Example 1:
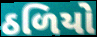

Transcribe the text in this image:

ઠળિયો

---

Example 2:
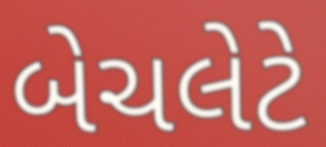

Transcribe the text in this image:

બેચલેટે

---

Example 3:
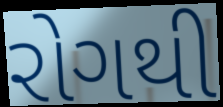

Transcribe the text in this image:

રોગથી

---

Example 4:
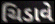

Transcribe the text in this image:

ચિડાવે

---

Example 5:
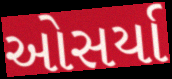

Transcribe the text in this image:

ઓસર્યા